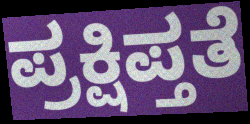
ಪ್ರಕ್ಷಿಪ್ತತೆ